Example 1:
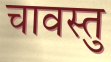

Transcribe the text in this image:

चावस्तु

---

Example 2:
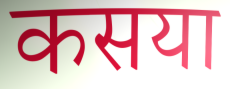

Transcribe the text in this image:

कसया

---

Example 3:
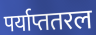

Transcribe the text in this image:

पर्याप्ततरल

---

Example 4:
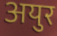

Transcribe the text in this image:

अयुर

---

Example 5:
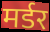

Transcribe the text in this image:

मर्डर